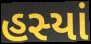
હસ્યાં